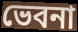
ভেবনা